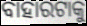
ବାହାରଟାକୁ